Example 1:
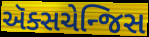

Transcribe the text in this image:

ઍક્સચેન્જિસ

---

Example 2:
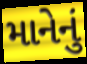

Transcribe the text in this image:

માનેનું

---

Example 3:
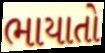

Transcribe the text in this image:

ભાયાતો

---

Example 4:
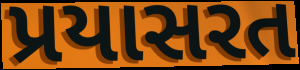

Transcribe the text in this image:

પ્રયાસરત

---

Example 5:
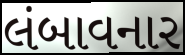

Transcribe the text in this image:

લંબાવનાર